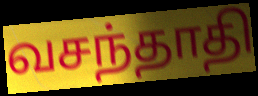
வசந்தாதி